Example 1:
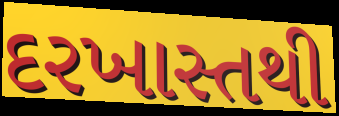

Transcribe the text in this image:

દરખાસ્તથી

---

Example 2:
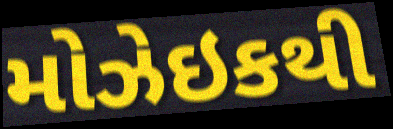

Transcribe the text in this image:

મોઝેઇકથી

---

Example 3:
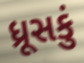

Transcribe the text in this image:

ધ્રૂસકું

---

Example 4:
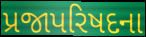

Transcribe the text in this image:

પ્રજાપરિષદના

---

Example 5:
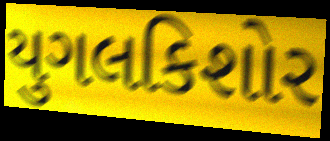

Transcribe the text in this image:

યુગલકિશોર